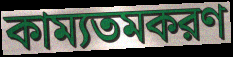
কাম্যতমকরণ